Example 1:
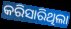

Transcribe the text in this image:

କରିସାରିଥିଲା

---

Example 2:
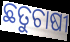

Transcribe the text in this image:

ଛତୁଚାଷୀ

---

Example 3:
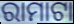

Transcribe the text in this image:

ରାମାଟା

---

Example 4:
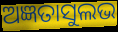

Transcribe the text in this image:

ଅଜ୍ଞତାସୁଲଭ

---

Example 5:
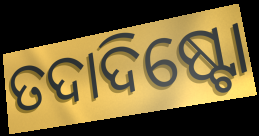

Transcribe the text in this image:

ତଦାଦିଷ୍ଟୋ